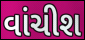
વાંચીશ